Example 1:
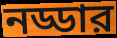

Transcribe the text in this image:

নড্ডার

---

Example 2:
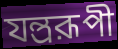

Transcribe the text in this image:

যন্ত্ররূপী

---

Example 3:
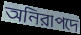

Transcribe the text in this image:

অনিরাপদে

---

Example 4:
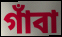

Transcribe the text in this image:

গাঁবা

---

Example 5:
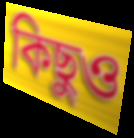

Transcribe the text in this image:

কিছুও